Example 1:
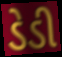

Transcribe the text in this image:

ડેડી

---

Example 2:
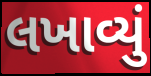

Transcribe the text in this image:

લખાવ્યું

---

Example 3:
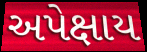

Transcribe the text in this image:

અપેક્ષાય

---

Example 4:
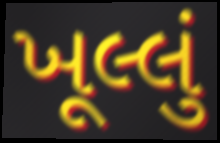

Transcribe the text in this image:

ખૂલ્લું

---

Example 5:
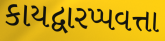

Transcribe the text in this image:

કાયદ્વારપ્પવત્તા